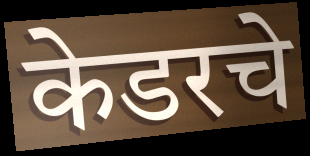
केडरचे